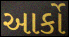
આર્કો